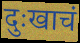
दुःखाचं